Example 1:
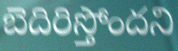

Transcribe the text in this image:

బెదిరిస్తోందని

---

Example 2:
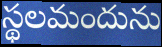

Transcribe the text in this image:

స్థలమందును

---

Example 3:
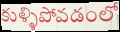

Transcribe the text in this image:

కుళ్ళిపోవడంలో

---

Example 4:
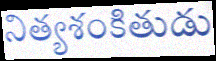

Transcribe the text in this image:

నిత్యశంకితుడు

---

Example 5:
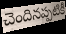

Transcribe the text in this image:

చెందినప్పటికీ